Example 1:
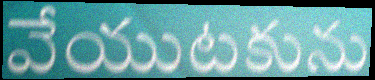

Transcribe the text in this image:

వేయుటకును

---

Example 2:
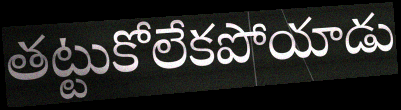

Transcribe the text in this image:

తట్టుకోలేకపోయాడు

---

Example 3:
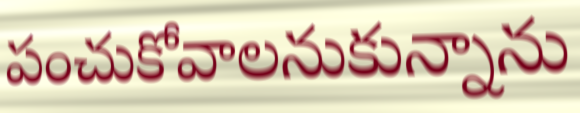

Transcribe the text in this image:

పంచుకోవాలనుకున్నాను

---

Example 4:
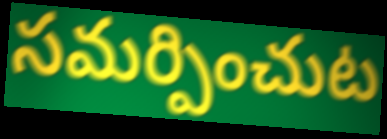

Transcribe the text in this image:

సమర్పించుట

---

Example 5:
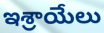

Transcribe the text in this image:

ఇశ్రాయేలు